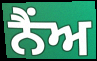
ਨੈਂਅ